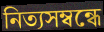
নিত্যসম্বন্ধে